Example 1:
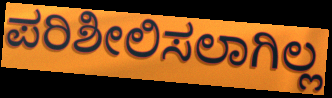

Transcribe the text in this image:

ಪರಿಶೀಲಿಸಲಾಗಿಲ್ಲ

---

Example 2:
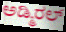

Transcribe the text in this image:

ಅಡ್ಮಿರಲ್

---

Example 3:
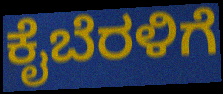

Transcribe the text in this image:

ಕೈಬೆರಳಿಗೆ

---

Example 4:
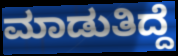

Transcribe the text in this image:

ಮಾಡುತಿದ್ದೆ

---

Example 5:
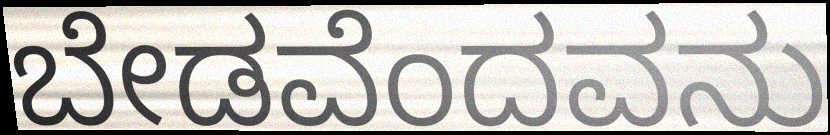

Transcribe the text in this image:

ಬೇಡವೆಂದವನು